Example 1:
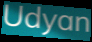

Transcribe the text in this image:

Udyan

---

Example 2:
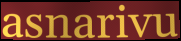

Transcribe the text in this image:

asnarivu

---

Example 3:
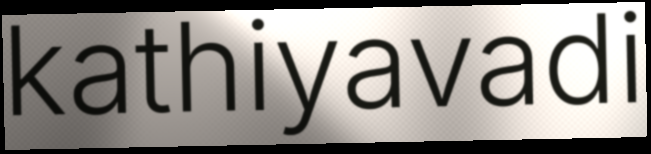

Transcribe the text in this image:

kathiyavadi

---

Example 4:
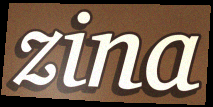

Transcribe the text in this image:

zina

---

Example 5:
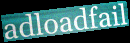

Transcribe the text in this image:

adloadfail